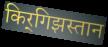
किर्गिझस्तान